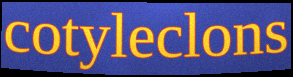
cotyleclons